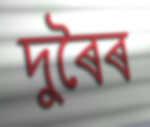
দুৰৈৰ